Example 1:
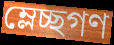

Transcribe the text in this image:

ম্লেচ্ছগণ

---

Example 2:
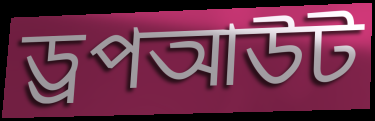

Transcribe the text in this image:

ড্রপআউট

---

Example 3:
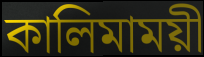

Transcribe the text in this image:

কালিমাময়ী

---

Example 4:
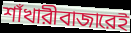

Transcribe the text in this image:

শাঁখারীবাজারেই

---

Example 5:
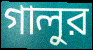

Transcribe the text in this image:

গালুর